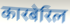
कारबेरिल